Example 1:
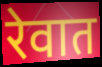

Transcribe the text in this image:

रेवात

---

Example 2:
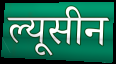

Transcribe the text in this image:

ल्यूसीन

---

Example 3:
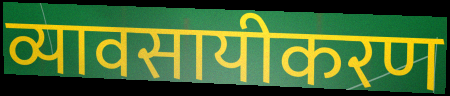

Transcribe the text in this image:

व्यावसायीकरण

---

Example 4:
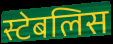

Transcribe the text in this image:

स्टेबलिस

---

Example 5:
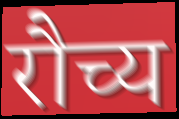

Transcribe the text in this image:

रौच्य